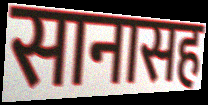
सानासह